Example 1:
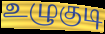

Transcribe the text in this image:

உழுகுடி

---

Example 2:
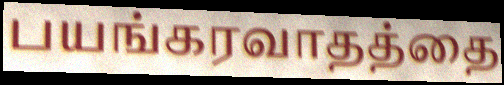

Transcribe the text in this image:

பயங்கரவாதத்தை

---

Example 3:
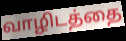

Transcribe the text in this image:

வாழிடத்தை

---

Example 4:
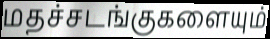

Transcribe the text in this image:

மதச்சடங்குகளையும்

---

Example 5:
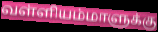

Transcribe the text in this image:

வள்ளியம்மாளுக்கு